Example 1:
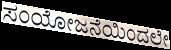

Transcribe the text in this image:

ಸಂಯೋಜನೆಯಿಂದಲೇ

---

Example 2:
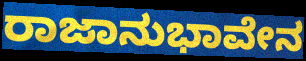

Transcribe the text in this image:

ರಾಜಾನುಭಾವೇನ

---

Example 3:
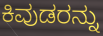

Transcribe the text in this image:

ಕಿವುಡರನ್ನು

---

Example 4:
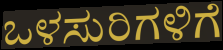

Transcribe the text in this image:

ಒಳಸುರಿಗಳಿಗೆ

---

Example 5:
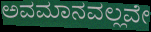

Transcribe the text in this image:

ಅವಮಾನವಲ್ಲವೇ